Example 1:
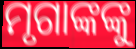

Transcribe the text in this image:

ମୃଗାଙ୍କଙ୍କୁ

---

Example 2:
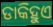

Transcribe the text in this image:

ଡାକିହୁଏ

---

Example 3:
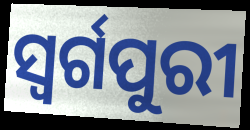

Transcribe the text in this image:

ସ୍ଵର୍ଗପୁରୀ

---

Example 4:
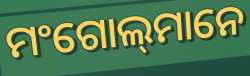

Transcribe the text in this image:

ମଂଗୋଲ୍‍ମାନେ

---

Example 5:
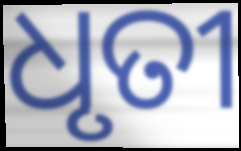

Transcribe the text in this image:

ଧୃତୀ